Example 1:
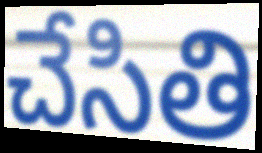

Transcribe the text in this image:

చేసితి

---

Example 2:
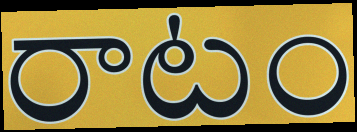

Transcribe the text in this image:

రాటం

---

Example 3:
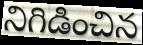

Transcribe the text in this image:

నిగిడించిన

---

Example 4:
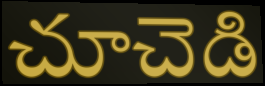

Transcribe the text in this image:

చూచెడి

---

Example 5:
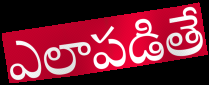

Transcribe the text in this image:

ఎలాపడితే